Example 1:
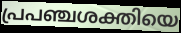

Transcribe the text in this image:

പ്രപഞ്ചശക്തിയെ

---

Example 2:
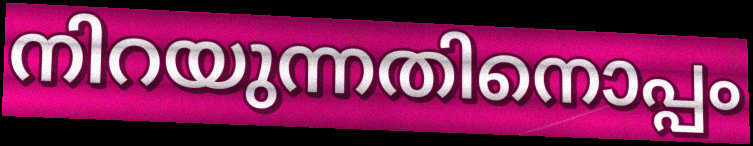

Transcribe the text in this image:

നിറയുന്നതിനൊപ്പം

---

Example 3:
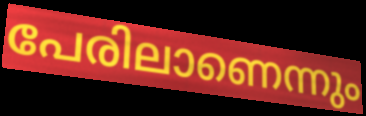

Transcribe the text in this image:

പേരിലാണെന്നും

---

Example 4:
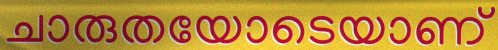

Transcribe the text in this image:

ചാരുതയോടെയാണ്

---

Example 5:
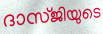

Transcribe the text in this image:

ദാസ്ജിയുടെ